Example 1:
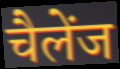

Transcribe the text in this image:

चैलेंज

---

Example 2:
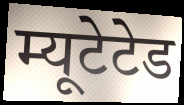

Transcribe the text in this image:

म्यूटेटेड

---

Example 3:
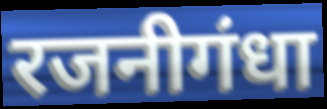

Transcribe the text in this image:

रजनीगंधा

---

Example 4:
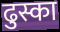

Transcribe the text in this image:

ढुस्का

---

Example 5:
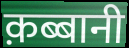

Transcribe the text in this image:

क़ब्बानी